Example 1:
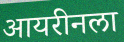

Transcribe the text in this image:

आयरीनला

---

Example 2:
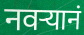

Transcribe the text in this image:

नवर्‍यानं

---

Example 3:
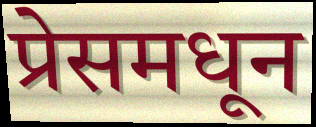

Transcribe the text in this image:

प्रेसमधून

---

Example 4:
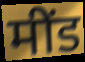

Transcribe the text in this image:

मींड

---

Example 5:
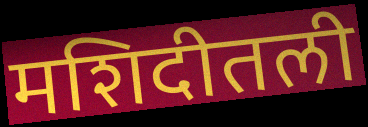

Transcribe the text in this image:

मशिदीतली